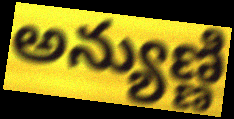
అన్యుణ్ణి